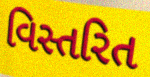
વિસ્તરિત